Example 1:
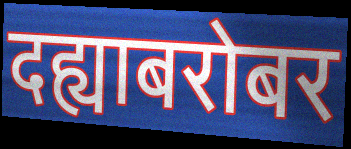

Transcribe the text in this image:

दह्याबरोबर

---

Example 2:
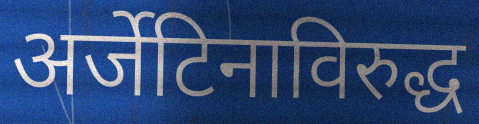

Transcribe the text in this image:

अर्जेटिनाविरुद्ध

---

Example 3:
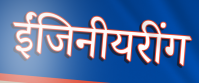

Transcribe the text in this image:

ईंजिनीयरींग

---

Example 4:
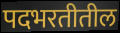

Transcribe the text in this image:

पदभरतीतील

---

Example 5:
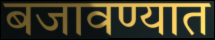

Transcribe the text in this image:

बजावण्यात